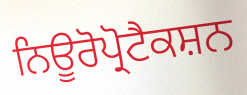
ਨਿਊਰੋਪ੍ਰੋਟੈਕਸ਼ਨ